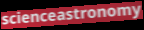
scienceastronomy